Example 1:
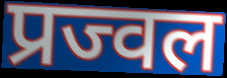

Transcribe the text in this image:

प्रज्वल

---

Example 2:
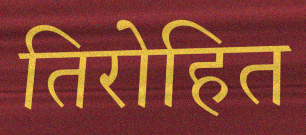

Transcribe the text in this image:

तिरोहित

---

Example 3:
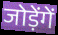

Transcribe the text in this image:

जोड़ेंगें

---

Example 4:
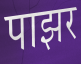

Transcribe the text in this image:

पाझर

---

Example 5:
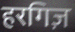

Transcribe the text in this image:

हरगिज़